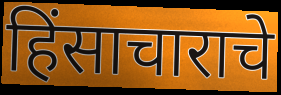
हिंसाचाराचे